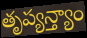
తృప్యన్త్యాం